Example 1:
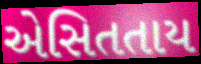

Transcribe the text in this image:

એસિતતાય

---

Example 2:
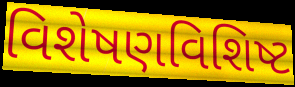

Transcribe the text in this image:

વિશેષણવિશિષ્ટ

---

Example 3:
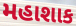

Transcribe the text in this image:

મહાશાક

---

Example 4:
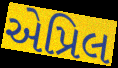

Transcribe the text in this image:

એપ્રિલ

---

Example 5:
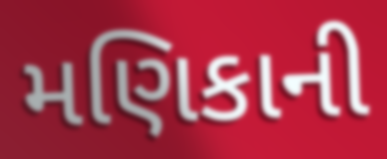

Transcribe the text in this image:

મણિકાની